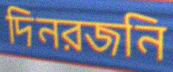
দিনরজনি